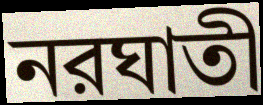
নরঘাতী